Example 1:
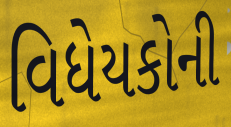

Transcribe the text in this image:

વિધેયકોની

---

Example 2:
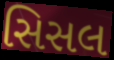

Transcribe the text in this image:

સિસલ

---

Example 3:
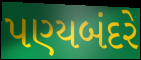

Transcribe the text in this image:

પણ્યબંદરે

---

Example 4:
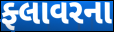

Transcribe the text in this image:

ફ્લાવરના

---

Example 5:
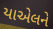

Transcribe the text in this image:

યાએલને